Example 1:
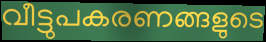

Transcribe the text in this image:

വീട്ടുപകരണങ്ങളുടെ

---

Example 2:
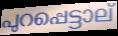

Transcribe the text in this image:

പുറപ്പെട്ടാല്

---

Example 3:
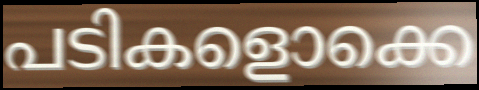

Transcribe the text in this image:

പടികളൊക്കെ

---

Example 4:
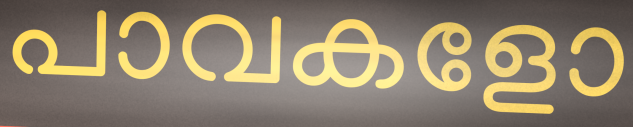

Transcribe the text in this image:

പാവകളോ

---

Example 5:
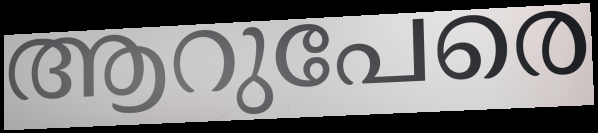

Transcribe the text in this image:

ആറുപേരെ